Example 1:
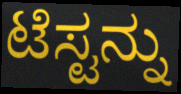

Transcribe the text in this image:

ಟೆಸ್ಟನ್ನು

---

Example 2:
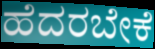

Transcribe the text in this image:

ಹೆದರಬೇಕೆ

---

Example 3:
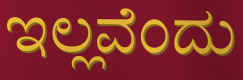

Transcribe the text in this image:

ಇಲ್ಲವೆಂದು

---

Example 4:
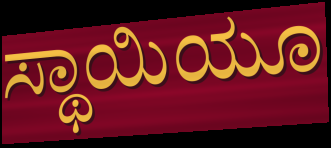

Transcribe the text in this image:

ಸ್ಥಾಯಿಯೂ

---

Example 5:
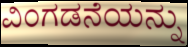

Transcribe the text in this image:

ವಿಂಗಡನೆಯನ್ನು